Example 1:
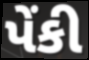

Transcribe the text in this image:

પેંકી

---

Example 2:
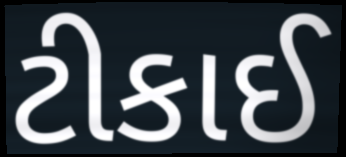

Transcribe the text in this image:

ટીકાઈ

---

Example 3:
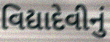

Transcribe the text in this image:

વિદ્યાદેવીનું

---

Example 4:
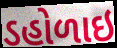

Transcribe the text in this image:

ડહોળાઇ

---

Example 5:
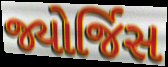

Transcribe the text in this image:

જ્યોર્જિસ